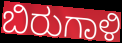
ಬಿರುಗಾಳಿ